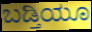
ಬಡ್ತಿಯೂ